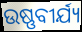
ଉଷ୍ଣବୀର୍ଯ୍ୟ